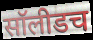
सॉलीडच